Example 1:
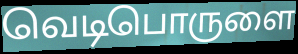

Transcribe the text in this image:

வெடிபொருளை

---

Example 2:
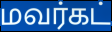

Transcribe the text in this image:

மவர்கட்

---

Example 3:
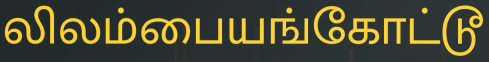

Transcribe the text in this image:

லிலம்பையங்கோட்டூ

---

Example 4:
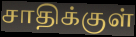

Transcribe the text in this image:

சாதிக்குள்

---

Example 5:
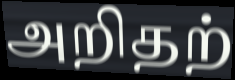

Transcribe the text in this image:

அறிதற்